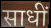
साधीं